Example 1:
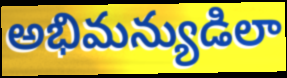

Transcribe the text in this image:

అభిమన్యుడిలా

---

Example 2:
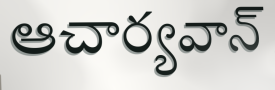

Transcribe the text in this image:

ఆచార్యవాన్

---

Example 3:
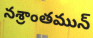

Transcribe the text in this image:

నశ్రాంతమున్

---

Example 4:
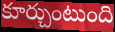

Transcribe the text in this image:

కూర్చుంటుంది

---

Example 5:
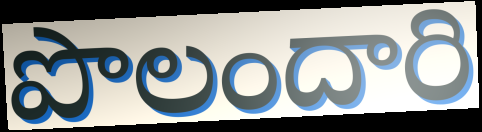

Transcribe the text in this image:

పొలందారి